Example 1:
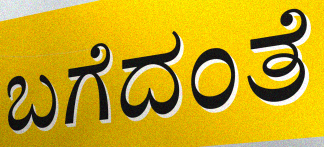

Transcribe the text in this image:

ಬಗೆದಂತೆ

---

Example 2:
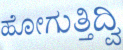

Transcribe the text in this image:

ಹೋಗುತ್ತಿದ್ವಿ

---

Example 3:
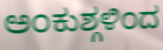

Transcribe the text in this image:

ಅಂಕುಶ್ಗಳಿಂದ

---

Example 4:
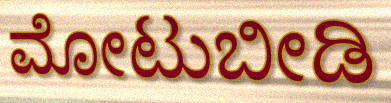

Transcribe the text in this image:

ಮೋಟುಬೀಡಿ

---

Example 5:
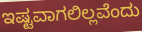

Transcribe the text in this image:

ಇಷ್ಟವಾಗಲಿಲ್ಲವೆಂದು